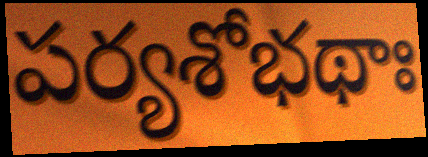
పర్యశోభథాః